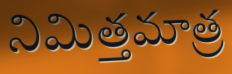
నిమిత్తమాత్ర